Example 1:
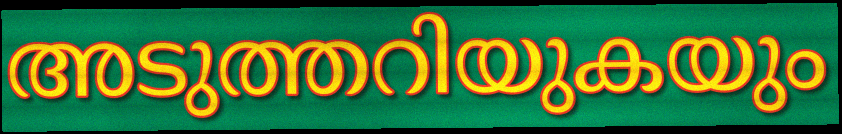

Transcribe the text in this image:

അടുത്തറിയുകയും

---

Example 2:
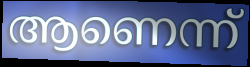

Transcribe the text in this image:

ആണെന്ന്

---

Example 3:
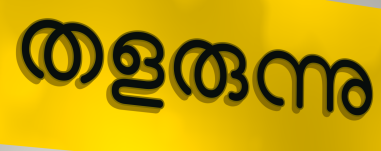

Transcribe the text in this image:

തളരുന്നു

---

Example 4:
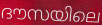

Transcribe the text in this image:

ദൗസയിലെ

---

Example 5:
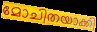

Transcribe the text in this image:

മോചിതയാക്കി